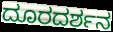
ದೂರದರ್ಶನ